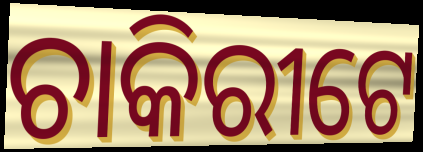
ଚାକିରୀଟେ